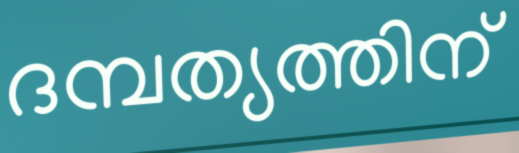
ദമ്പത്യത്തിന്